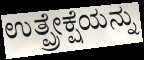
ಉತ್ಪ್ರೇಕ್ಷೆಯನ್ನು